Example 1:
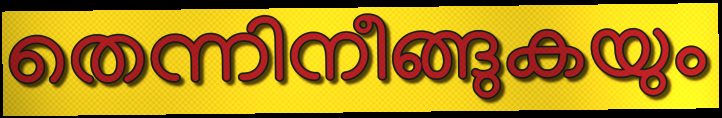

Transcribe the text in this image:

തെന്നിനീങ്ങുകയും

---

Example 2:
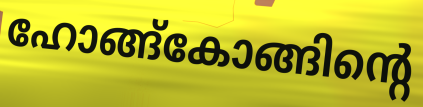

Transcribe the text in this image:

ഹോങ്ങ്കോങ്ങിന്റെ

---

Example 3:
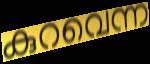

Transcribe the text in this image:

കുറവെന്ന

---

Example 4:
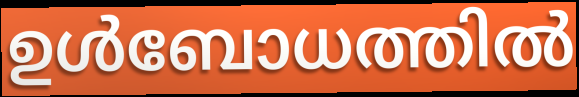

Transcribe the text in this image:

ഉൾബോധത്തിൽ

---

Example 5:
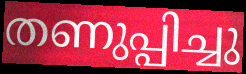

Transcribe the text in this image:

തണുപ്പിച്ചു